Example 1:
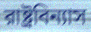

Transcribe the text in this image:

রাষ্ট্রবিন্যাস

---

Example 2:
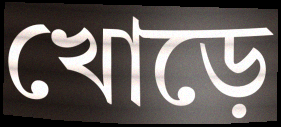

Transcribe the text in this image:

খোড়ে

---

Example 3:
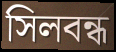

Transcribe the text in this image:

সিলবন্ধ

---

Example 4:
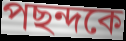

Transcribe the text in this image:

পছন্দকে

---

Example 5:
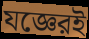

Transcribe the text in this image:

যজ্ঞেরই